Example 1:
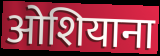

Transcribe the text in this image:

ओशियाना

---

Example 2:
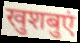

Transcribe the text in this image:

खुशबुएं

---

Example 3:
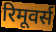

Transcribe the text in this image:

रिमूवर्स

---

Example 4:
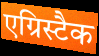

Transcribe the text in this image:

एग्रिस्टैक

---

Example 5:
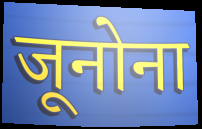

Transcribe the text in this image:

जूनोना